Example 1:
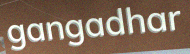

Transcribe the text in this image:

gangadhar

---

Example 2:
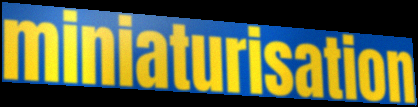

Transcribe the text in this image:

miniaturisation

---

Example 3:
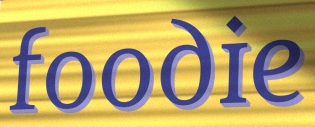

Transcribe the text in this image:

foodie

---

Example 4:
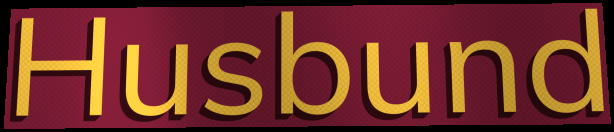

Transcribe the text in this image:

Husbund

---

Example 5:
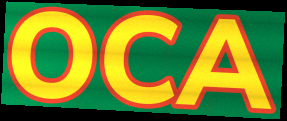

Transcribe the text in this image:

OCA